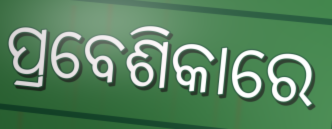
ପ୍ରବେଶିକାରେ